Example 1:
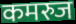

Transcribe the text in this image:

कमरुज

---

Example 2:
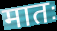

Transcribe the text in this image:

मातः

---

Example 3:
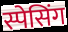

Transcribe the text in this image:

स्पेसिंग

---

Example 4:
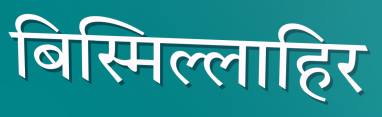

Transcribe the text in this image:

बिस्मिल्लाहिर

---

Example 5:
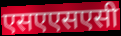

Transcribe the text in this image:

एसएएसएसी